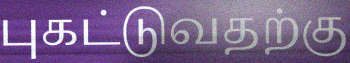
புகட்டுவதற்கு